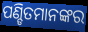
ପଣ୍ଡିତମାନଙ୍କର